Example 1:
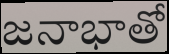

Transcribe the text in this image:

జనాభాతో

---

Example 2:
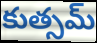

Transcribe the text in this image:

కుత్సమ్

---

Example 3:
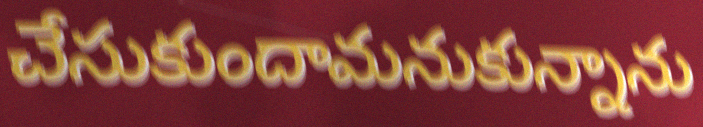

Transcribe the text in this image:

చేసుకుందామనుకున్నాను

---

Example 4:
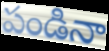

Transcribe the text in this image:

పండినా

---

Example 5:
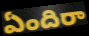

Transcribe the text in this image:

ఏందిరా